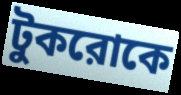
টুকরোকে